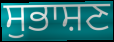
ਸੁਭਾਸ਼ਣ